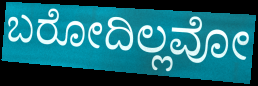
ಬರೋದಿಲ್ಲವೋ